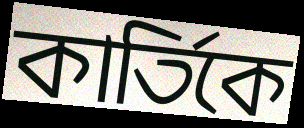
কার্তিকে